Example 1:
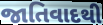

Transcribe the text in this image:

જાતિવાદથી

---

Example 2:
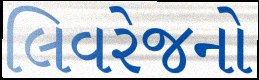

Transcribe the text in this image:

લિવરેજનો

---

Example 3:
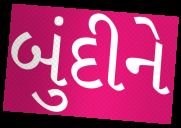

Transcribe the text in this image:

બુંદીને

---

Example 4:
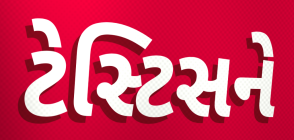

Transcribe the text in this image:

ટેસ્ટિસને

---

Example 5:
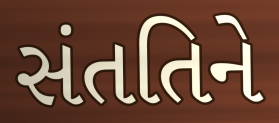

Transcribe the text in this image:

સંતતિને